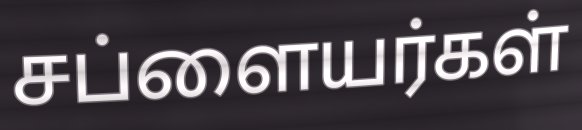
சப்ளையர்கள்